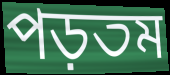
পড়তম